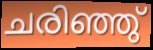
ചരിഞ്ഞു്